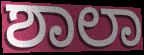
ಶಾಲಾ